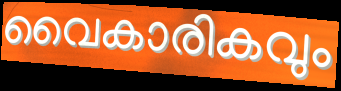
വൈകാരികവും